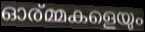
ഓര്മ്മകളെയും